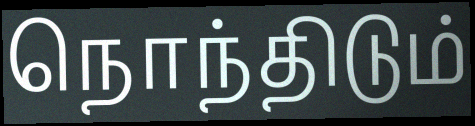
நொந்திடும்